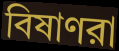
বিষাণরা